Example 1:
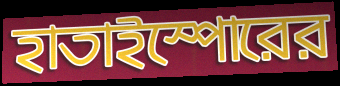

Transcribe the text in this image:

হাতাইস্পোরের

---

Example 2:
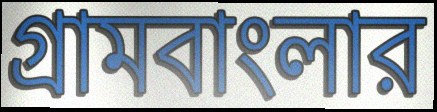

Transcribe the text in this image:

গ্রামবাংলার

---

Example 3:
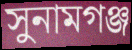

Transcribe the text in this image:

সুনামগঞ্জ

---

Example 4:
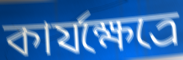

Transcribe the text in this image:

কার্যক্ষেত্রে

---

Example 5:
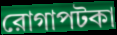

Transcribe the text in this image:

রোগাপটকা